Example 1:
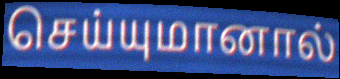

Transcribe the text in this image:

செய்யுமானால்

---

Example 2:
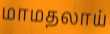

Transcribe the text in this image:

மாமதலாய்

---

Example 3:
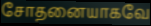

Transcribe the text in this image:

சோதனையாகவே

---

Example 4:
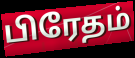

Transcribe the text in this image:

பிரேதம்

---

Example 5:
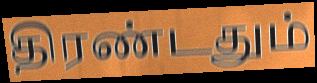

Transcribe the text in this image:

திரண்டதும்